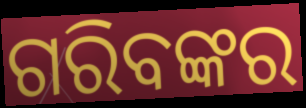
ଗରିବଙ୍କର